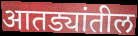
आतड्यांतील